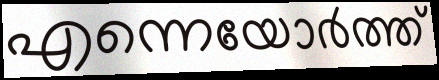
എന്നെയോർത്ത്